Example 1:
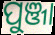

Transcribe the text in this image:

ପୁଞ୍ଜା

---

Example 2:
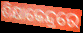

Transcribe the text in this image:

ଶିକ୍ଷାକେନ୍ଦ୍ରରେ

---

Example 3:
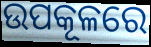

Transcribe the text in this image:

ଉପକୂଳରେ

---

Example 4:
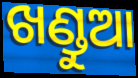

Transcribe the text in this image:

ଖଣ୍ଡୁଆ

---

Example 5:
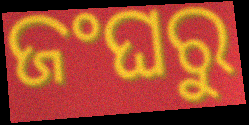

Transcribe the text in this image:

ଜଂଘରୁ